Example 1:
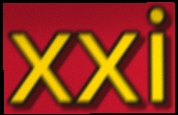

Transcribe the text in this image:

xxi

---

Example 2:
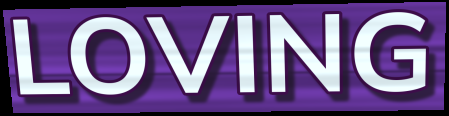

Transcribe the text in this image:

LOVING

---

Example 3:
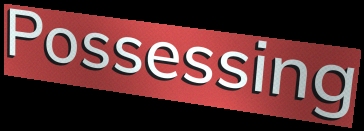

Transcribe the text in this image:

Possessing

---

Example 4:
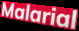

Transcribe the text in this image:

Malarial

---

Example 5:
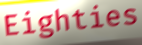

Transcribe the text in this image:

Eighties